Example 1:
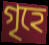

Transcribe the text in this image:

গৃহে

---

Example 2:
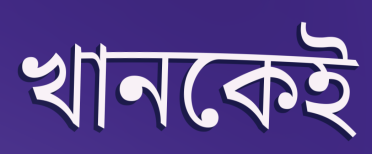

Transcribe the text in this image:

খানকেই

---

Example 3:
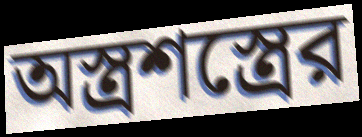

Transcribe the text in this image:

অস্ত্রশস্ত্রের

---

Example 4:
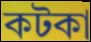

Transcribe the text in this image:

কটকা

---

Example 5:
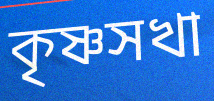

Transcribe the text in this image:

কৃষ্ণসখা